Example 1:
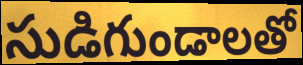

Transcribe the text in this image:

సుడిగుండాలతో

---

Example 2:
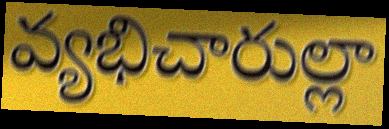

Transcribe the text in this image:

వ్యభిచారుల్లా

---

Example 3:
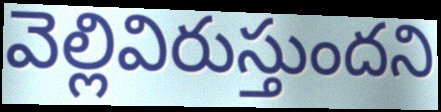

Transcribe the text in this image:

వెల్లివిరుస్తుందని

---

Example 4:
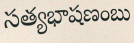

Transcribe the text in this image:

సత్యభాషణంబు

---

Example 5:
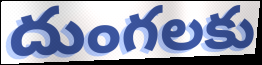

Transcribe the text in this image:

దుంగలకు